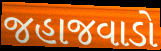
જહાજવાડો